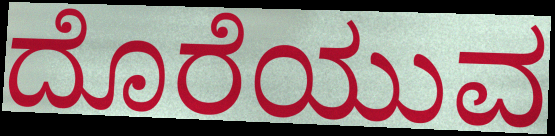
ದೊರೆಯುವ